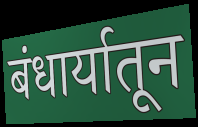
बंधार्यातून